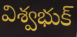
విశ్వభుక్